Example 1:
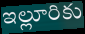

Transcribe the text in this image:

ఇల్లూరికు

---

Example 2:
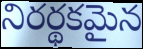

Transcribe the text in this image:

నిరర్థకమైన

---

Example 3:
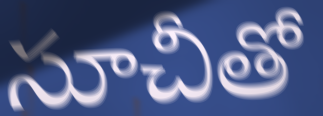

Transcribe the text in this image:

సూచీతో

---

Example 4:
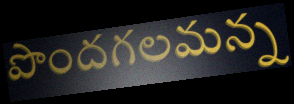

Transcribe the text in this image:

పొందగలమన్న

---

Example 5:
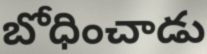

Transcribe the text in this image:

బోధించాడు